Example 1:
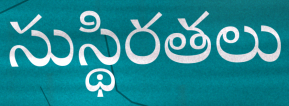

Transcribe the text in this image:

సుస్థిరతలు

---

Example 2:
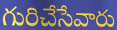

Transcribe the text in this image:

గురిచేసేవారు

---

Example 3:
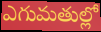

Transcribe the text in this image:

ఎగుమతుల్లో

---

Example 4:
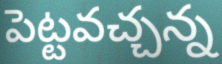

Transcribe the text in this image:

పెట్టవచ్చన్న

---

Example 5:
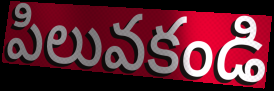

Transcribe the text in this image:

పిలువకండి